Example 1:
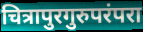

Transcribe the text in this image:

चित्रापुरगुरुपरंपरा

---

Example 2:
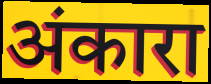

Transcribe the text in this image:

अंकारा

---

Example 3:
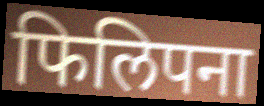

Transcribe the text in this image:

फिलिपना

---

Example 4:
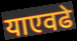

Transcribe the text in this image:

याएवढे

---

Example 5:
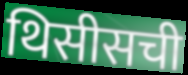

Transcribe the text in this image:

थिसीसची